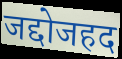
जद्दोजहद